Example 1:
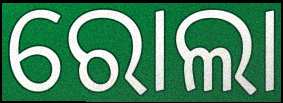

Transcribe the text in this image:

ରୋଲା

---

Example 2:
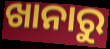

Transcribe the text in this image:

ଖାନାରୁ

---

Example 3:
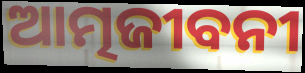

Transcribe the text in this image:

ଆତ୍ମଜୀବନୀ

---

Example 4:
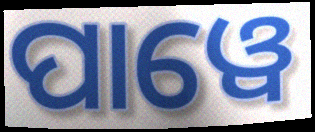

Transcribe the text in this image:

ପାୱେ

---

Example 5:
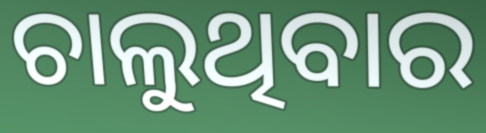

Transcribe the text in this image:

ଚାଲୁଥିବାର